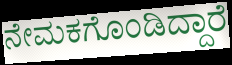
ನೇಮಕಗೊಂಡಿದ್ದಾರೆ